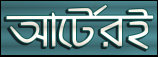
আর্টেরই